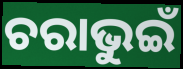
ଚରାଭୁଇଁ